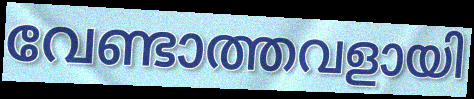
വേണ്ടാത്തവളായി